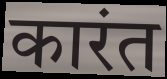
कारंत